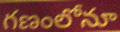
గణంలోనూ